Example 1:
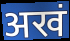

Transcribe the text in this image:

अखं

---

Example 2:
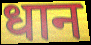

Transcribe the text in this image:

धान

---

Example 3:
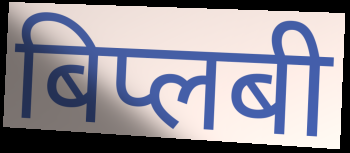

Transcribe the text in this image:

बिप्लबी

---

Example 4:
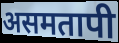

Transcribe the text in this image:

असमतापी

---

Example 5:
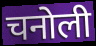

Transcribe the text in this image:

चनोली